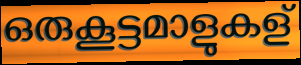
ഒരുകൂട്ടമാളുകള്